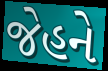
જેહને